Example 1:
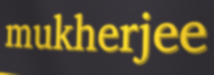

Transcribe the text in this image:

mukherjee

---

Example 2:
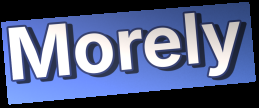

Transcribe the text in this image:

Morely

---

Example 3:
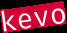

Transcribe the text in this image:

kevo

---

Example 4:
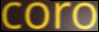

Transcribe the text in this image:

coro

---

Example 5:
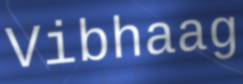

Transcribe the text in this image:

Vibhaag